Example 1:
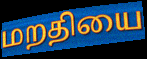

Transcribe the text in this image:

மறதியை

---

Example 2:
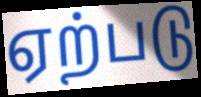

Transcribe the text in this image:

ஏற்படு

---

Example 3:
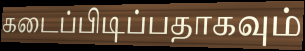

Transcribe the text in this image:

கடைப்பிடிப்பதாகவும்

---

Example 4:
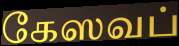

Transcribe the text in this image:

கேஸவப்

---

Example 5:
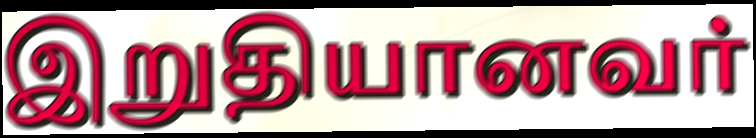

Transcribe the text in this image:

இறுதியானவர்